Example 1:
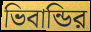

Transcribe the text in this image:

ভিবান্ডির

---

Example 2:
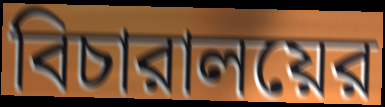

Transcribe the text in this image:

বিচারালয়ের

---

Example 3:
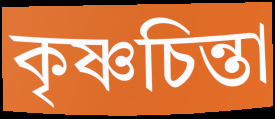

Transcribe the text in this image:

কৃষ্ণচিন্তা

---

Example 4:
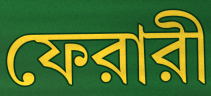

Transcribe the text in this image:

ফেরারী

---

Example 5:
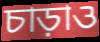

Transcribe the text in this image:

চাড়াও